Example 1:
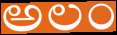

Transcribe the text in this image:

అలం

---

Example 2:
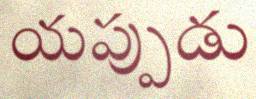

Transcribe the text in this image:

యప్పుడు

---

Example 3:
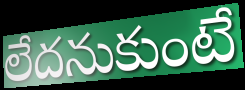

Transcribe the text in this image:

లేదనుకుంటే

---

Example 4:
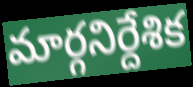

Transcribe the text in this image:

మార్గనిర్దేశిక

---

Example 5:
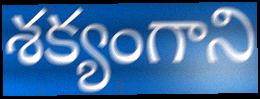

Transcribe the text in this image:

శక్యంగాని